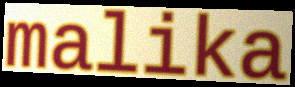
malika